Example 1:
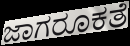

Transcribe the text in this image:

ಜಾಗರೂಕತೆ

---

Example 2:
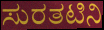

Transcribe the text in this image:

ಸುರತಟಿನಿ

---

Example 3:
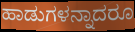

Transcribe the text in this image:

ಹಾಡುಗಳನ್ನಾದರೂ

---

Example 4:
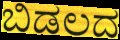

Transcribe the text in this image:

ಬಿಡಲದ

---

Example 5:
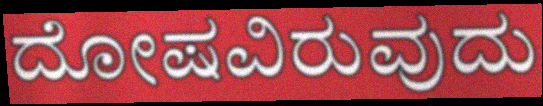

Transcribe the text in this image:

ದೋಷವಿರುವುದು